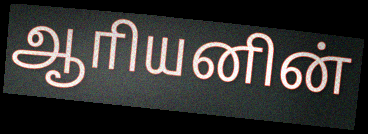
ஆரியனின்